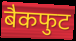
बैकफुट